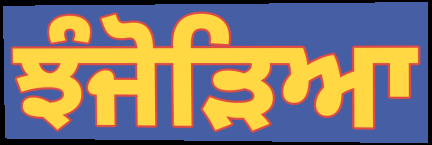
ਝੰਜੋੜਿਆ